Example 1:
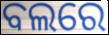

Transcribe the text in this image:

ବଲରେ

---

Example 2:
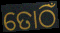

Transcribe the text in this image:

ତୋଠିଁ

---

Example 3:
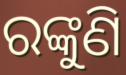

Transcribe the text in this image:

ରଙ୍କୁଣି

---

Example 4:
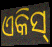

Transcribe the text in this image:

ଏକିସ୍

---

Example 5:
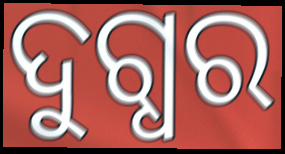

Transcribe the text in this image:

ଦୁଗ୍ଧର